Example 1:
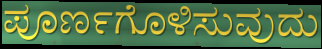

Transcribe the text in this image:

ಪೂರ್ಣಗೊಳಿಸುವುದು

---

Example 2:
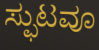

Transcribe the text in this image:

ಸ್ಫುಟವೂ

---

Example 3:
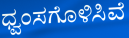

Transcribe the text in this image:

ಧ್ವಂಸಗೊಳಿಸಿವೆ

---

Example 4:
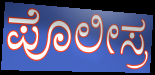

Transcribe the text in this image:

ಪೊಲೀಸ್ರ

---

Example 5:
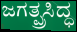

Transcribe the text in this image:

ಜಗತ್ಪ್ರಸಿದ್ಧ